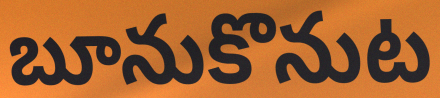
బూనుకొనుట